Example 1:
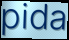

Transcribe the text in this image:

pida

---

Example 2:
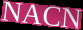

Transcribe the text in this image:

NACN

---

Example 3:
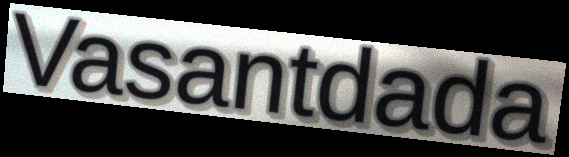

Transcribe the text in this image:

Vasantdada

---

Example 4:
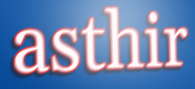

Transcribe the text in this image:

asthir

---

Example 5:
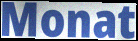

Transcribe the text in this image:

Monat